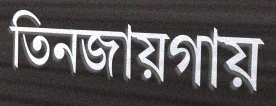
তিনজায়গায়